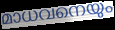
മാധവനെയും